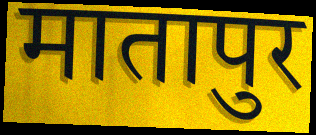
मातापुर